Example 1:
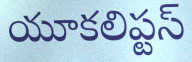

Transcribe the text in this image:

యూకలిప్టస్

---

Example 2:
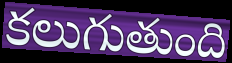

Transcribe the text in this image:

కలుగుతుంది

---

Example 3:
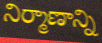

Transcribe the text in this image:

నిర్మాణాన్ని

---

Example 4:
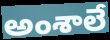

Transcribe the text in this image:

అంశాలే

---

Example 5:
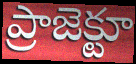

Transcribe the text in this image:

ప్రాజెక్టూ